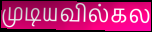
முடியவில்கல